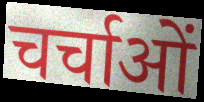
चर्चाओं